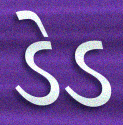
ડેડ